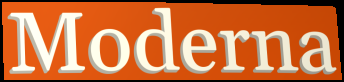
Moderna